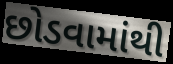
છોડવામાંથી